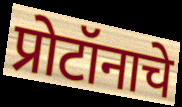
प्रोटॉनाचे